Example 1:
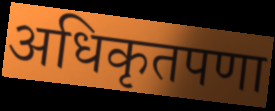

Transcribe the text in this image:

अधिकृतपणा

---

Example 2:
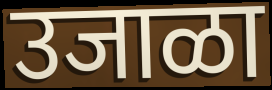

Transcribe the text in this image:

उजाळा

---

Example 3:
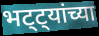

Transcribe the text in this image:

भट्ट्यांच्या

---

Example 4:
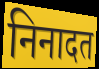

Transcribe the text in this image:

निनादत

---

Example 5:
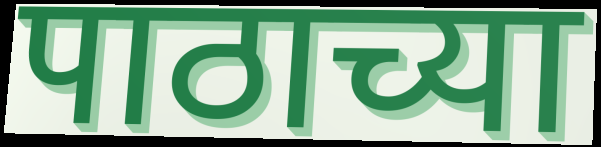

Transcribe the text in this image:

पाठाच्या